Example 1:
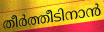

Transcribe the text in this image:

തീർത്തീടിനാൻ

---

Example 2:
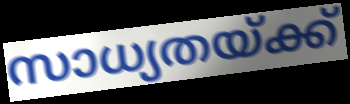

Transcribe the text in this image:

സാധ്യതയ്ക്ക്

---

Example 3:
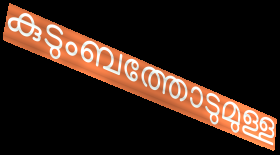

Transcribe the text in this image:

കുടുംബത്തോടുമുള്ള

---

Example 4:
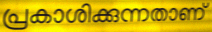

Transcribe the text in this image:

പ്രകാശിക്കുന്നതാണ്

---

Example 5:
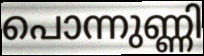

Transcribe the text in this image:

പൊന്നുണ്ണി